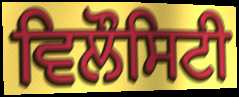
ਵਿਲੌਸਿਟੀ